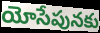
యోసేపునకు